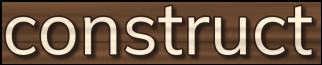
construct